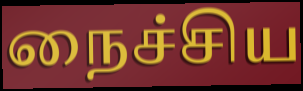
நைச்சிய